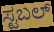
ಸ್ಟಬಲ್